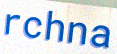
rchna